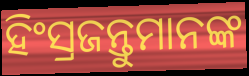
ହିଂସ୍ରଜନ୍ତୁମାନଙ୍କ